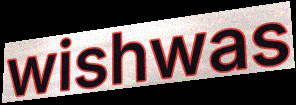
wishwas